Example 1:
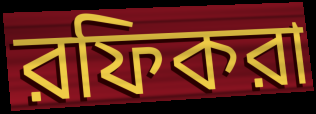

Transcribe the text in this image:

রফিকরা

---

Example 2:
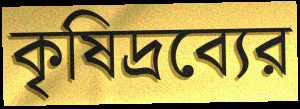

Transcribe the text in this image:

কৃষিদ্রব্যের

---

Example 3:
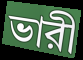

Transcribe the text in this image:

ভারী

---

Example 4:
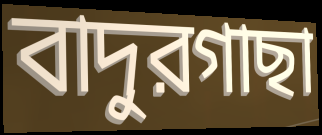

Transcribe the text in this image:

বাদুরগাছা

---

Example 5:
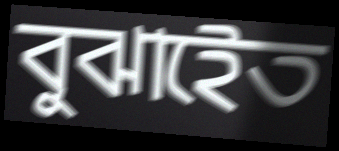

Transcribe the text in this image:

বুঝাইেত